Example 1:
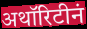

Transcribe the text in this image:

अथॉरिटीनं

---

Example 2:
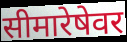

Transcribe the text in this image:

सीमारेषेवर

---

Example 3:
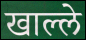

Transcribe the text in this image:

खाल्ले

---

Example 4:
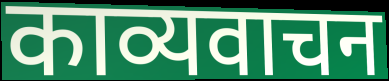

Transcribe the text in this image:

काव्यवाचन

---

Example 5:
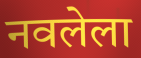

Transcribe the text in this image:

नवलेला